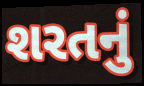
શરતનું